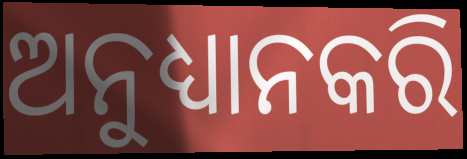
ଅନୁଧ୍ୟାନକରି